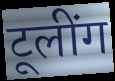
टूलींग